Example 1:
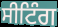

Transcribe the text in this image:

ਸੀਟਿੰਗ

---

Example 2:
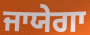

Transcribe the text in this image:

ਜਾਯੇਗਾ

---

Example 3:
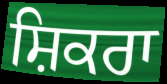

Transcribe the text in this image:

ਸ਼ਿਕਰਾ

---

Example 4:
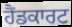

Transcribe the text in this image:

ਹੈਂਡਕਾਰਟ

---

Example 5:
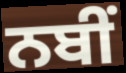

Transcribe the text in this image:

ਨਬੀਂ